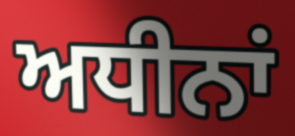
ਅਧੀਨਾਂ